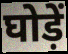
घोड़ें